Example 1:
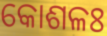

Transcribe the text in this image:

କୋଶଳଃ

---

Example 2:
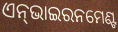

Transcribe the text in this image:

ଏନ୍‌ଭାଇରନମେଣ୍ଟ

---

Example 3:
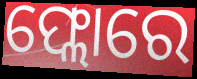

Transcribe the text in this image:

ଫ୍ଲୋରେ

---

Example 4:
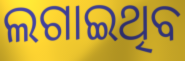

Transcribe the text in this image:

ଲଗାଇଥିବ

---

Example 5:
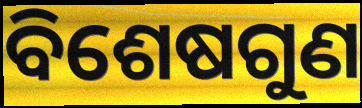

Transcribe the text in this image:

ବିଶେଷଗୁଣ